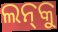
ଲନ୍‌କୁ